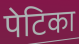
पेटिका